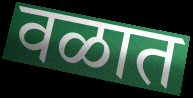
वळात